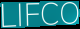
LIFCO